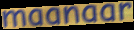
maanaar